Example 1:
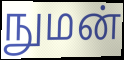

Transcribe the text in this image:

நுமன்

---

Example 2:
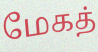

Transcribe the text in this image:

மேகத்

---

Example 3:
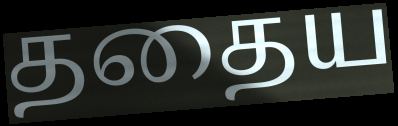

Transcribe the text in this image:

ததைய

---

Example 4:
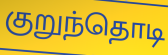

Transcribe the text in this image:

குறுந்தொடி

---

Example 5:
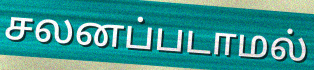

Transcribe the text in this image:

சலனப்படாமல்